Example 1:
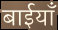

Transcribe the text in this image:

बाईयाँ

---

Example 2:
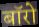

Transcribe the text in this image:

बॉरो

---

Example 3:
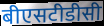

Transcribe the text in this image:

बीएसटीडीसी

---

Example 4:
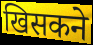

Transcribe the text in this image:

खिसकने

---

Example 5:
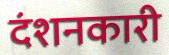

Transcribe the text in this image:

दंशनकारी